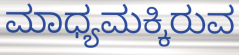
ಮಾಧ್ಯಮಕ್ಕಿರುವ